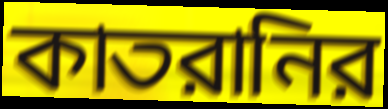
কাতরানির